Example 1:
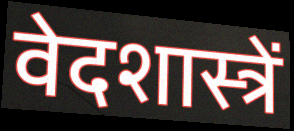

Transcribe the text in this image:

वेदशास्त्रें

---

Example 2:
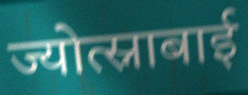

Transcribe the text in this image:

ज्योत्स्नाबाई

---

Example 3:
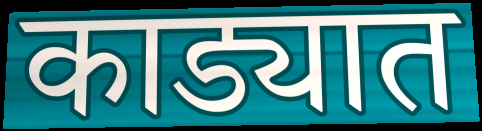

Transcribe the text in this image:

काड्यात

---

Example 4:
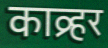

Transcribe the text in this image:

काव्र्हर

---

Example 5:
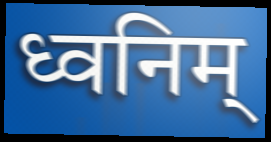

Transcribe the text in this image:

ध्वनिम्